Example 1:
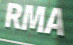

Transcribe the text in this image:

RMA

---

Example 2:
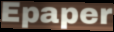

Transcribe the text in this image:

Epaper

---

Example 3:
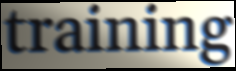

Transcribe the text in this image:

training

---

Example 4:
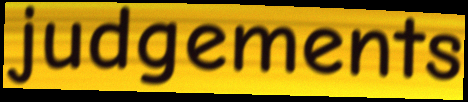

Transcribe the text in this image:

judgements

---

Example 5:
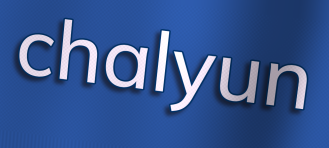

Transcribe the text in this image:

chalyun